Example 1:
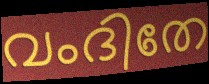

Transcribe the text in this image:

വംദിതേ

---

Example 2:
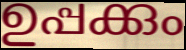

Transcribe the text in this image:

ഉപ്പക്കും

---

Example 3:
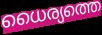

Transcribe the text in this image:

ധൈര്യത്തെ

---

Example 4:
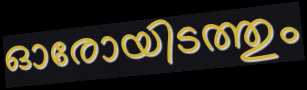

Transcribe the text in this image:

ഓരോയിടത്തും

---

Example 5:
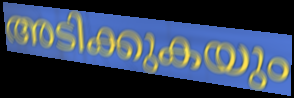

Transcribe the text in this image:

അടിക്കുകയും